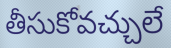
తీసుకోవచ్చులే